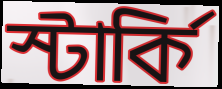
স্টার্কি